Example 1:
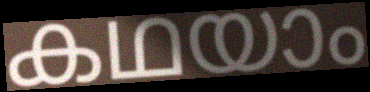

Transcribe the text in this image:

കഥയാം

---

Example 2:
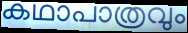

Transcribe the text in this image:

കഥാപാത്രവും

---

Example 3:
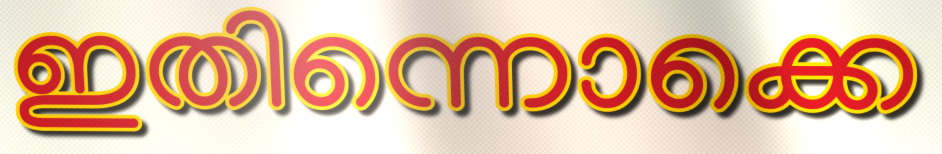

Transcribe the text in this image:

ഇതിന്നൊക്കെ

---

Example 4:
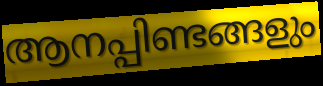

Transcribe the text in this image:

ആനപ്പിണ്ടങ്ങളും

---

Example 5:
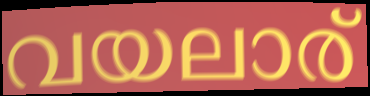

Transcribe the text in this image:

വയലാര്